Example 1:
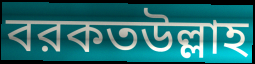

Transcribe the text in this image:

বরকতউল্লাহ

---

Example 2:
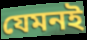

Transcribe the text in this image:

যেমনই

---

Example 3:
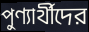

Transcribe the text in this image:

পুণ্যার্থীদের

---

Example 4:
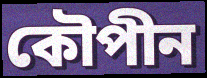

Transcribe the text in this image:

কৌপীন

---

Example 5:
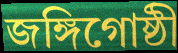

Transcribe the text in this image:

জঙ্গিগোষ্ঠী